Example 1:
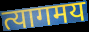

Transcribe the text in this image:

त्यागमय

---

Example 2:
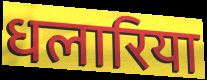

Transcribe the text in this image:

धलारिया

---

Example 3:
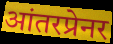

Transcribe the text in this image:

आंतरप्रेनर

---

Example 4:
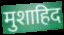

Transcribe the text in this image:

मुशाहिद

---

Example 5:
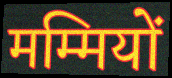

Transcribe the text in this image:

मम्मियों